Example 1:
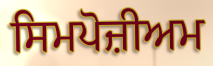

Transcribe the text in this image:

ਸਿਮਪੋਜ਼ੀਅਮ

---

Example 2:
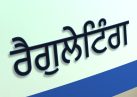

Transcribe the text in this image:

ਰੈਗੁਲੇਟਿੰਗ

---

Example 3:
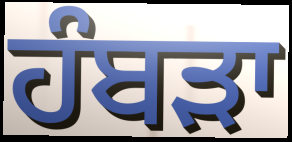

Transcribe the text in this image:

ਹੰਬਡ਼ਾ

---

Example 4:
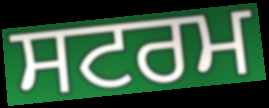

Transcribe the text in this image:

ਸਟਰਮ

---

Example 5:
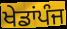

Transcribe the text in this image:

ਖੇਡਾਂਪੰਜ